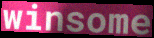
winsome